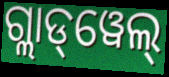
ଗ୍ଲାଡ୍‌ୱେଲ୍